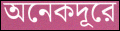
অনেকদূরে